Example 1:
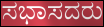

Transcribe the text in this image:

ಸಭಾಸದರು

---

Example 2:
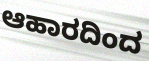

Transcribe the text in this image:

ಆಹಾರದಿಂದ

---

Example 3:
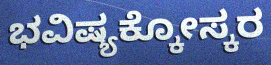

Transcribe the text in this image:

ಭವಿಷ್ಯಕ್ಕೋಸ್ಕರ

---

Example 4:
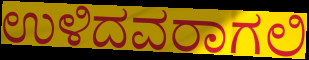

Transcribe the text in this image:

ಉಳಿದವರಾಗಲಿ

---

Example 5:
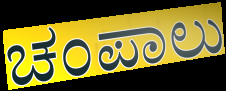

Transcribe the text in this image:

ಚಂಪಾಲು